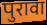
पुरावा